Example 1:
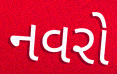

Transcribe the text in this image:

નવરો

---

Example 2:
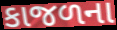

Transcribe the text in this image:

કાજળના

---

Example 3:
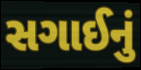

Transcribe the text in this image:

સગાઈનું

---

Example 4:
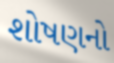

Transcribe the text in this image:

શોષણનો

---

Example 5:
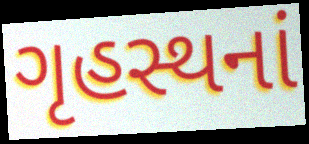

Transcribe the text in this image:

ગૃહસ્થનાં